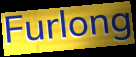
Furlong